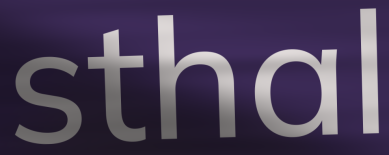
sthal